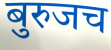
बुरुजच